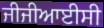
ਜੀਜੀਆਈਸੀ